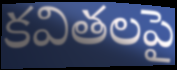
కవితలపై